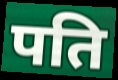
पति